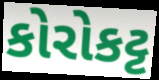
કોરોકટ્ટ